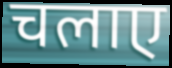
चलाए